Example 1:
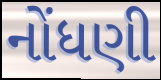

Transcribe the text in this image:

નોંધણી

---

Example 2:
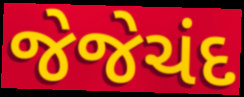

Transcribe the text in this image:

જેજેચંદ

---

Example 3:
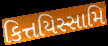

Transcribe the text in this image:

કિત્તયિસ્સામિ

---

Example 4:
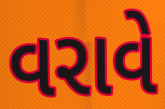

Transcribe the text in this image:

વરાવે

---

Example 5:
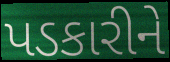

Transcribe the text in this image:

પડકારીને